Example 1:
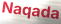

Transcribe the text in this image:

Naqada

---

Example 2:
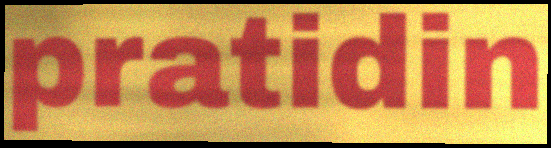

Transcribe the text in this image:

pratidin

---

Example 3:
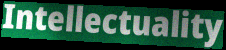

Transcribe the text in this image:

Intellectuality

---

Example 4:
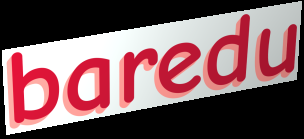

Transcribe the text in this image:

baredu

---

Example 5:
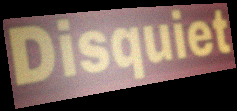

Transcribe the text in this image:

Disquiet